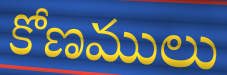
కోణములు